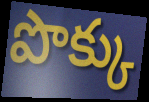
పొక్కు